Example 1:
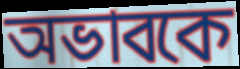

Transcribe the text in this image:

অভাবকে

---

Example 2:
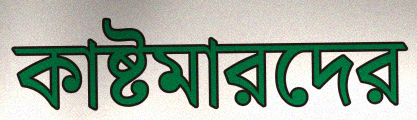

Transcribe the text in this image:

কাষ্টমারদের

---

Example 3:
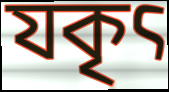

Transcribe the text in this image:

যকৃৎ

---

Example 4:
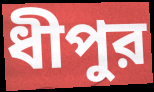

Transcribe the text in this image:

ধীপুর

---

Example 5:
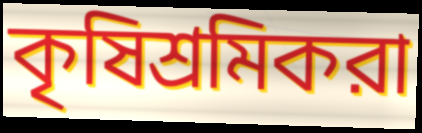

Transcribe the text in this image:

কৃষিশ্রমিকরা